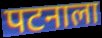
पटनाला